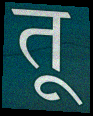
तू